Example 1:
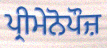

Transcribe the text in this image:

ਪ੍ਰੀਮੇਨੋਪੌਜ਼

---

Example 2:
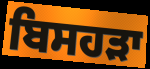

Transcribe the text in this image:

ਬਿਸਹੜਾ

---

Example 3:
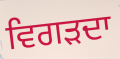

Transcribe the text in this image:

ਵਿਗੜਦਾ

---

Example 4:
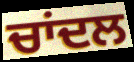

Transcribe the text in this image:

ਚਾਂਦਲ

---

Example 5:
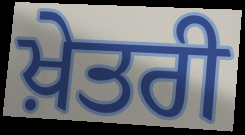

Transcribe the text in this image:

ਖ਼ੇਤਰੀ